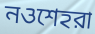
নওশেহরা